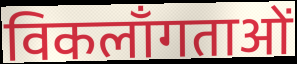
विकलाँगताओं